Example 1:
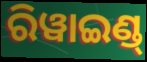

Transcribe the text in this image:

ରିୱାଇଣ୍ଡ୍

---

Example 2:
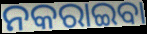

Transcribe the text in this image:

ନକରାଇବା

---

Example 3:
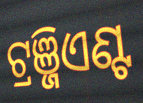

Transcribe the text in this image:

ଟ୍ରଞ୍ଜିଏଣ୍ଟ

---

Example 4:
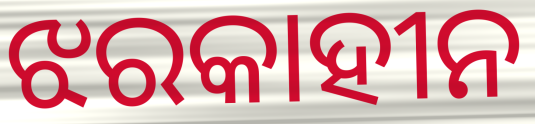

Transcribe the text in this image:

ଝରକାହୀନ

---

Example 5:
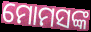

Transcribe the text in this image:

ମୋମସଙ୍କ